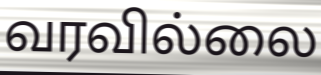
வரவில்லை